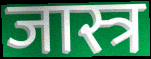
जास्त्र